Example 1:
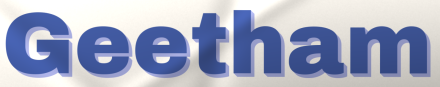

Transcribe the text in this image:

Geetham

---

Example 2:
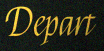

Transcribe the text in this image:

Depart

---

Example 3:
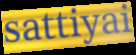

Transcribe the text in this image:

sattiyai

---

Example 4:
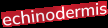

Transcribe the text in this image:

echinodermis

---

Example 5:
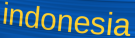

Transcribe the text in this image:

indonesia